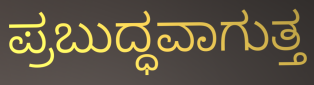
ಪ್ರಬುದ್ಧವಾಗುತ್ತ